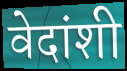
वेदांशी